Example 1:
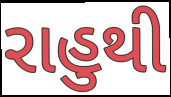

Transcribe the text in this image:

રાહુથી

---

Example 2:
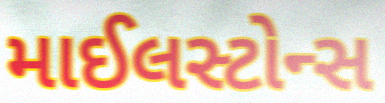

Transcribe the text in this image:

માઈલસ્ટોન્સ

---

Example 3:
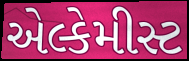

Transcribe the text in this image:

એલ્કેમીસ્ટ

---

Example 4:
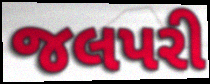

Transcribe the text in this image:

જલપરી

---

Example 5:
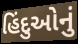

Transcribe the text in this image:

હિંદુઓનું